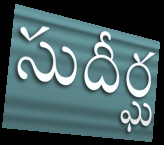
సుదీర్ఘ